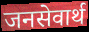
जनसेवार्थ